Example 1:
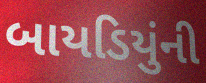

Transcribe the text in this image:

બાયડિયુંની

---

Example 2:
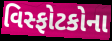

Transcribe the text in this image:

વિસ્ફોટકોના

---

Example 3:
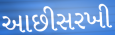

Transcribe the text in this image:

આછીસરખી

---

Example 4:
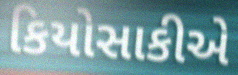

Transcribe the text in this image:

કિયોસાકીએ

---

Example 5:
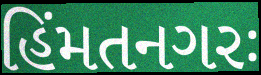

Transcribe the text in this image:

હિંમતનગરઃ